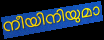
നീയിനിയുമാ